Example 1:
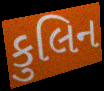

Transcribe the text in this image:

કુલિન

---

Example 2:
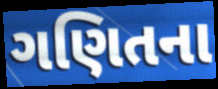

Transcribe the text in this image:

ગણિતના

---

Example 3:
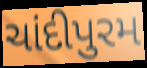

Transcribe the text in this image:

ચાંદીપુરમ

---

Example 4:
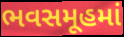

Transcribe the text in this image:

ભવસમૂહમાં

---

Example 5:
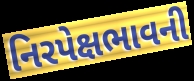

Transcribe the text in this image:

નિરપેક્ષભાવની